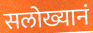
सलोख्यानं